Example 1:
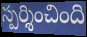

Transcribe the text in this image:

స్పర్శించింది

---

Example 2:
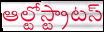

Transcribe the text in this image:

ఆల్టోస్ట్రాటస్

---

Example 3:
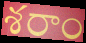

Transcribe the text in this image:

శరాం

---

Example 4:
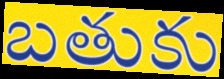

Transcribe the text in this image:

బతుకు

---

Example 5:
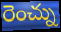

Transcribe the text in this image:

రెంచ్ను